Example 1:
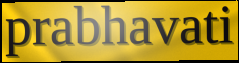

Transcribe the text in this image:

prabhavati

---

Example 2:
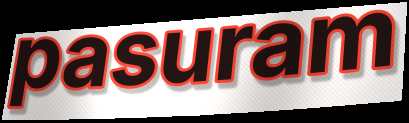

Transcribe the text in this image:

pasuram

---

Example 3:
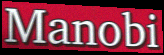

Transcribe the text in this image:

Manobi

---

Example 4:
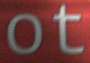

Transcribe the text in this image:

ot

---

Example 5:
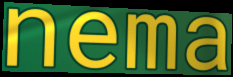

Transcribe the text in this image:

nema